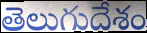
తెలుగుదేశం